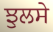
ਝੁਲਸੇ